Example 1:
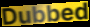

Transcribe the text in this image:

Dubbed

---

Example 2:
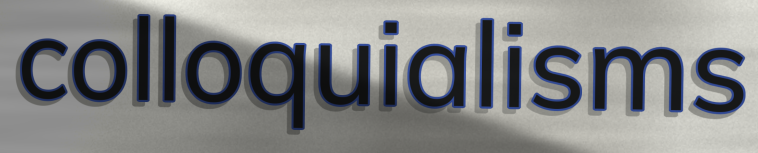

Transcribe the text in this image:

colloquialisms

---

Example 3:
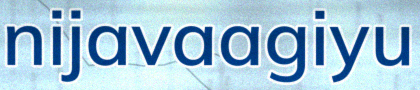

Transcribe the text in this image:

nijavaagiyu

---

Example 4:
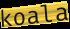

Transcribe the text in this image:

koala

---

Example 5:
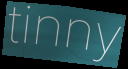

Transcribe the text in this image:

tinny